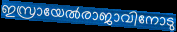
ഇസ്രായേൽരാജാവിനോടു